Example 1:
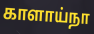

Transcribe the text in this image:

காளாய்நா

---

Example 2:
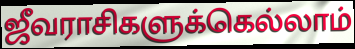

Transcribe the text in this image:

ஜீவராசிகளுக்கெல்லாம்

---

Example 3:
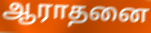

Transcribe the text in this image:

ஆராதனை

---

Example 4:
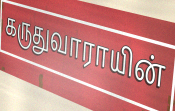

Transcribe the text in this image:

கருதுவாராயின்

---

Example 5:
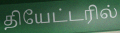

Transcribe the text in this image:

தியேட்டரில்